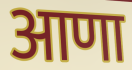
आणा